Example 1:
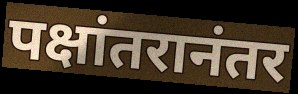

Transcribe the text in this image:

पक्षांतरानंतर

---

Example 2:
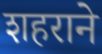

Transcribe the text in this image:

शहराने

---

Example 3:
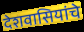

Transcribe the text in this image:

देशवासियांचे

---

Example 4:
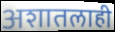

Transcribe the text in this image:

अशातलाही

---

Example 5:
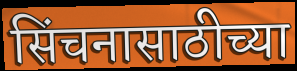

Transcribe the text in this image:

सिंचनासाठीच्या